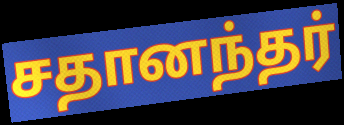
சதானந்தர்